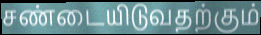
சண்டையிடுவதற்கும்